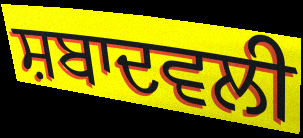
ਸ਼ਬਾਦਵਲੀ